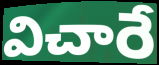
విచారే